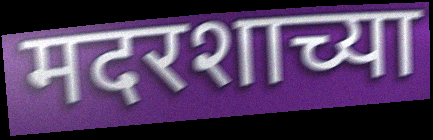
मदरशाच्या